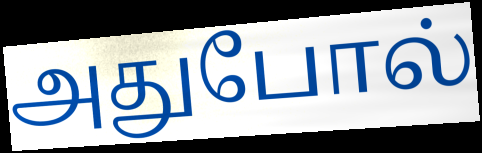
அதுபோல்